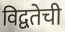
विद्वतेची